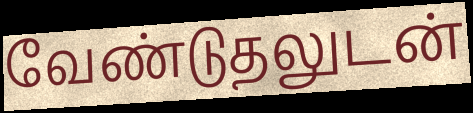
வேண்டுதலுடன்